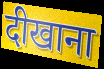
दीखाना